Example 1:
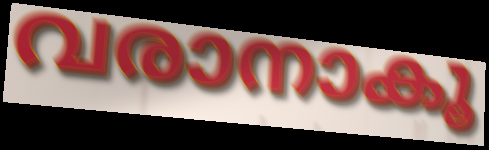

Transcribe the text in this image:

വരാനാകൂ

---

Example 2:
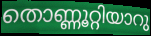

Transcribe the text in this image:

തൊണ്ണൂറ്റിയാറു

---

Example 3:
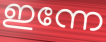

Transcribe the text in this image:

ഇന്നേ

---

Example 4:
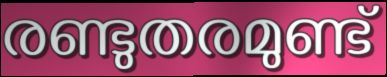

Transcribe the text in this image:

രണ്ടുതരമുണ്ട്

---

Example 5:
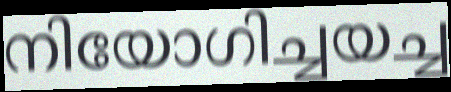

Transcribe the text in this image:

നിയോഗിച്ചയച്ച